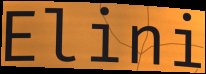
Elini